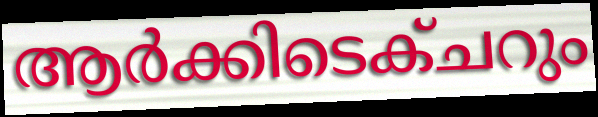
ആർക്കിടെക്ചറും